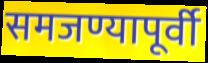
समजण्यापूर्वी